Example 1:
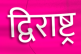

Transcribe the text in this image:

द्विराष्ट्र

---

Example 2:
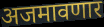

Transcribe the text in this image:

अजमावणार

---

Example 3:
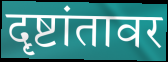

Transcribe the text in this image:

दृष्टांतावर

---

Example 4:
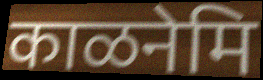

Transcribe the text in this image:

काळनेमि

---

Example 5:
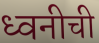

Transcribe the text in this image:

ध्वनीची